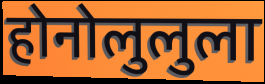
होनोलुलुला